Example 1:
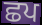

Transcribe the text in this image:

ਛਪ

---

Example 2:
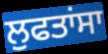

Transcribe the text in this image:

ਲੁਫਤਾਂਸਾ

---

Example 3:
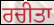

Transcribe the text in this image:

ਰਚੀਤਾ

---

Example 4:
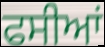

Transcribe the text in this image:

ਫਸੀਆਂ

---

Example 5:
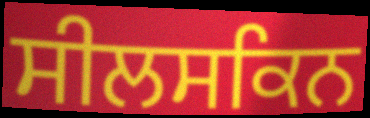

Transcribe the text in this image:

ਸੀਲਸਕਿਨ